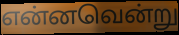
என்னவென்று